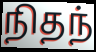
நிதந்